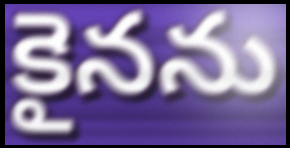
కైనను